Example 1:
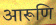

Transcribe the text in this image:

आरूणि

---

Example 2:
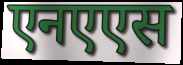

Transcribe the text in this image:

एनएएस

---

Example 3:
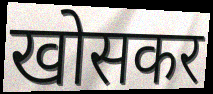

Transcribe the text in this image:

खोसकर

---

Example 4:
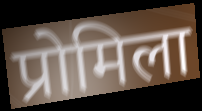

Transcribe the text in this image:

प्रोमिला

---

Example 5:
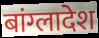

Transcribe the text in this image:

बांग्‍लादेश